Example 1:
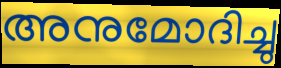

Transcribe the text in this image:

അനുമോദിച്ചു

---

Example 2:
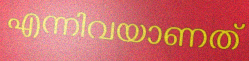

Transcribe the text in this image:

എന്നിവയാണത്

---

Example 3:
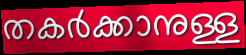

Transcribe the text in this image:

തകർക്കാനുള്ള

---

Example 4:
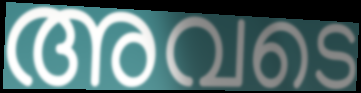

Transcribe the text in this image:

അവടെ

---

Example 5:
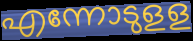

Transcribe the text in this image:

എന്നോടുളള